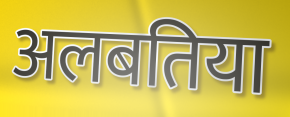
अलबतिया